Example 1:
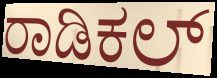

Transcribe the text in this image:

ರಾಡಿಕಲ್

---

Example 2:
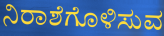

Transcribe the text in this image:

ನಿರಾಶೆಗೊಳಿಸುವ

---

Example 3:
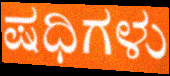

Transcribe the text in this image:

ಷಧಿಗಳು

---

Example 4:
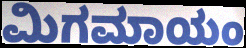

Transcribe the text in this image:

ಮಿಗಮಾಯಂ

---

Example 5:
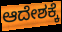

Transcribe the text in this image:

ಆದೇಶಕ್ಕೆ